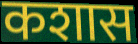
कशास